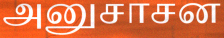
அனுசாசன